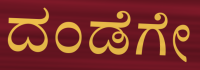
ದಂಡೆಗೇ